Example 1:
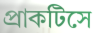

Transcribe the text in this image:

প্রাকটিসে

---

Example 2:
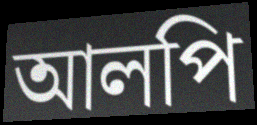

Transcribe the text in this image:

আলপি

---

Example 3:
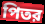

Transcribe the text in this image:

পিতর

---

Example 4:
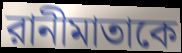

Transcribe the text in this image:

রানীমাতাকে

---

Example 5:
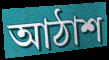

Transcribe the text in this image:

আঠাশ